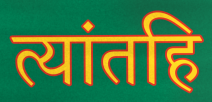
त्यांतहि